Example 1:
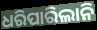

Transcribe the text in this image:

ଧରିପାରିଲାନି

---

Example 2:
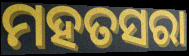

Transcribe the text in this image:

ମହତସରା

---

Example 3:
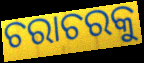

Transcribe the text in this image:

ଚରାଚରକୁ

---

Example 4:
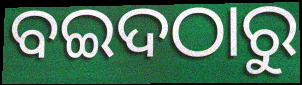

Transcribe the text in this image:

ବଇଦଠାରୁ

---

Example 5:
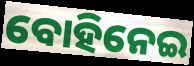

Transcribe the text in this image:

ବୋହିନେଇ